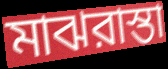
মাঝরাস্তা